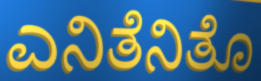
ಎನಿತೆನಿತೊ